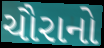
ચૌરાનો